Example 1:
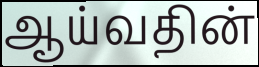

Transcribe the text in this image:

ஆய்வதின்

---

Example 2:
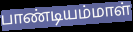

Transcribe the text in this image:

பாண்டியம்மாள்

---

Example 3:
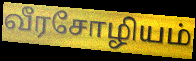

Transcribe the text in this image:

வீரசோழியம்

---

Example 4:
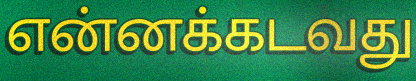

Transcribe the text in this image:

என்னக்கடவது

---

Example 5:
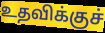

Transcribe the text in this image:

உதவிக்குச்